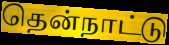
தென்நாட்டு